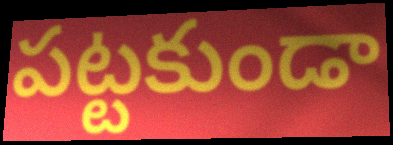
పట్టకుండా